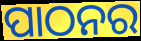
ପାଠନର